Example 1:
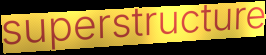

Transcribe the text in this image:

superstructure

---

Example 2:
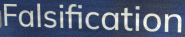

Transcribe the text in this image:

Falsification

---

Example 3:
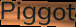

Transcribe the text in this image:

Piggot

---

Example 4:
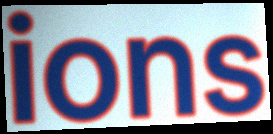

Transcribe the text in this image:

ions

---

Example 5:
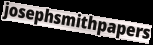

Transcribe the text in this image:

josephsmithpapers